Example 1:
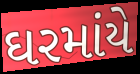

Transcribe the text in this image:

ઘરમાંયે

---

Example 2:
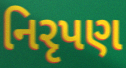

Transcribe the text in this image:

નિરૃપણ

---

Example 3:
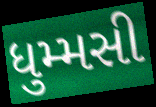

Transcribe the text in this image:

ધુમ્મસી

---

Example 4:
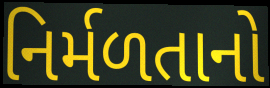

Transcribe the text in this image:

નિર્મળતાનો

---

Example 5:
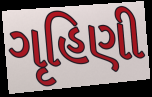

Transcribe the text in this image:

ગૃહિણી